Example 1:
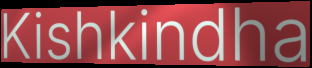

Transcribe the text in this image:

Kishkindha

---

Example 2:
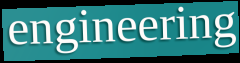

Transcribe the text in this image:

engineering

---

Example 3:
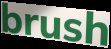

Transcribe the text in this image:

brush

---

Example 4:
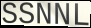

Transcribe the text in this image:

SSNNL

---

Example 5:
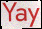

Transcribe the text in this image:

Yay